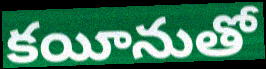
కయీనుతో